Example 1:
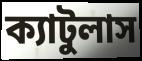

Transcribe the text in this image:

ক্যাটুলাস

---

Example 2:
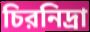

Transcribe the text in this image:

চিরনিদ্রা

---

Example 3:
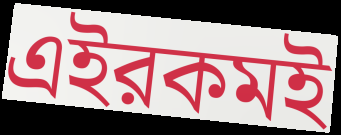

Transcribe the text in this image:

এইরকমই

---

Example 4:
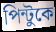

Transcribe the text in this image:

পিন্টুকে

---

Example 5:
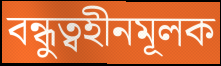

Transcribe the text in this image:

বন্ধুত্বহীনমূলক